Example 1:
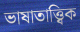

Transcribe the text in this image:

ভাষাতাত্ত্বিক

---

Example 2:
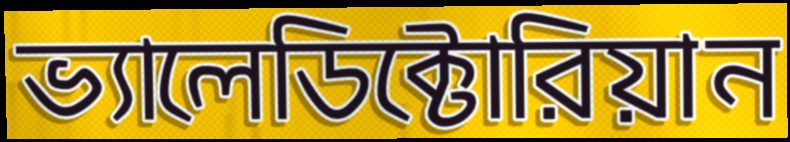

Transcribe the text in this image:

ভ্যালেডিক্টোরিয়ান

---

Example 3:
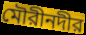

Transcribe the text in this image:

মৌরীনদীর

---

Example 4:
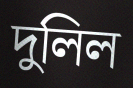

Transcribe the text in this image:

দুলিল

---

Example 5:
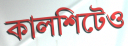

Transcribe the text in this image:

কালশিটেও